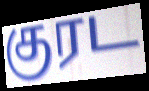
குரட